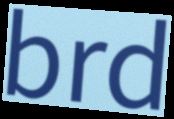
brd